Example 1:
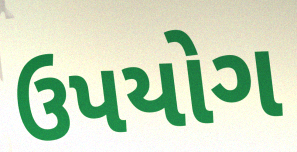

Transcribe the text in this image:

ઉપયોગ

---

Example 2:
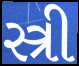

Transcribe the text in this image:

સ્ત્રી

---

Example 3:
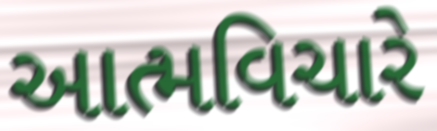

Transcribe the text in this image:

આત્મવિચારે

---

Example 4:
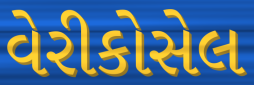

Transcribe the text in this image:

વેરીકોસેલ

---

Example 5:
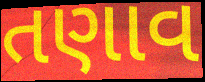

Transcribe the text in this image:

તણાવ